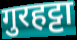
गुरहट्टा